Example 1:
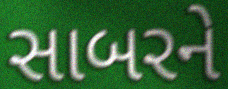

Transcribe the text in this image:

સાબરને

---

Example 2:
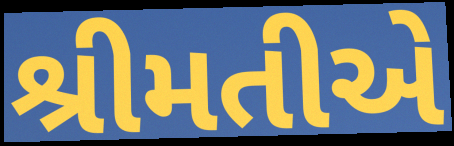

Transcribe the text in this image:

શ્રીમતીએ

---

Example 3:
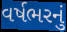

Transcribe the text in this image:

વર્ષભરનું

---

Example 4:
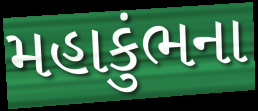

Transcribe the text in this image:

મહાકુંભના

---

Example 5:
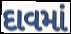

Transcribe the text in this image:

દાવમાં